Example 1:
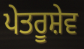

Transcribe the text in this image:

ਪੇਤਰੂਸ਼ੇਵ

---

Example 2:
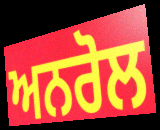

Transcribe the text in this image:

ਅਨਰੋਲ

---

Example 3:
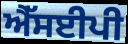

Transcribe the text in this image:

ਐੱਸਈਪੀ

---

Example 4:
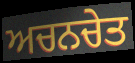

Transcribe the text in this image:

ਅਚਨਚੇਤ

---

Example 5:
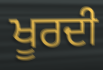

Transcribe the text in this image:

ਖੂਰਦੀ